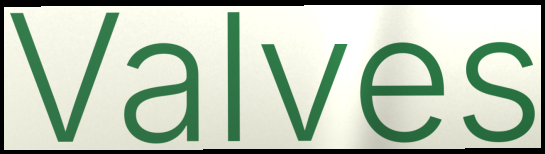
Valves